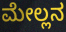
ಮೇಲ್ಲನ